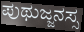
ಪುಥುಜ್ಜನಸ್ಸ